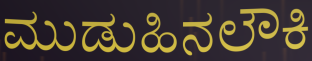
ಮುಡುಹಿನಲೌಕಿ